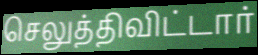
செலுத்திவிட்டார்